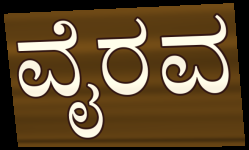
ವೈರವ